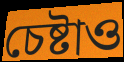
চেষ্টাও